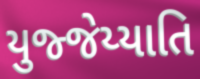
યુજ્જેય્યાતિ